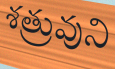
శత్రువుని